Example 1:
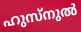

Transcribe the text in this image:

ഹുസ്നുൽ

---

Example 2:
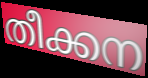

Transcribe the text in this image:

തീക്കന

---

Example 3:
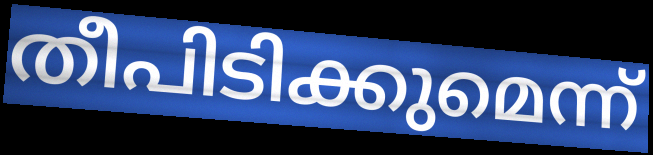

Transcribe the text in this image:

തീപിടിക്കുമെന്ന്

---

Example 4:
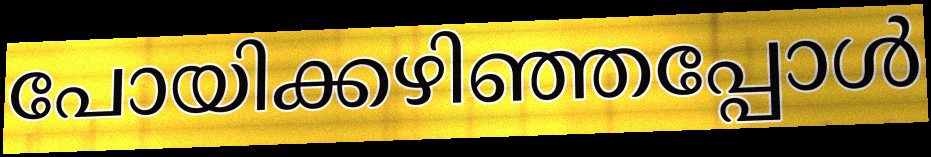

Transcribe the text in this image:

പോയിക്കഴിഞ്ഞപ്പോൾ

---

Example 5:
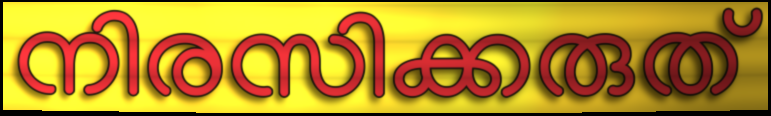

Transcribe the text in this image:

നിരസിക്കരുത്